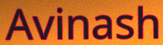
Avinash